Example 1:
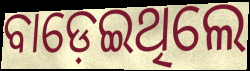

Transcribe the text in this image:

ବାଡ଼େଇଥିଲେ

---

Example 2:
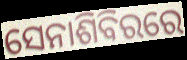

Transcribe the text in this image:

ସେନାଶିବିରରେ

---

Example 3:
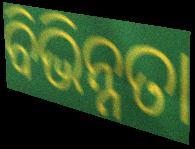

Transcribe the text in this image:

ବିଭିନ୍ନତା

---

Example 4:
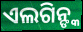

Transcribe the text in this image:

ଏଲଗିନ୍ଙ୍କ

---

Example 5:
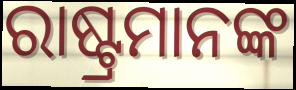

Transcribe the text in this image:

ରାଷ୍ଟ୍ରମାନଙ୍କ